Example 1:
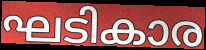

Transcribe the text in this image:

ഘടികാര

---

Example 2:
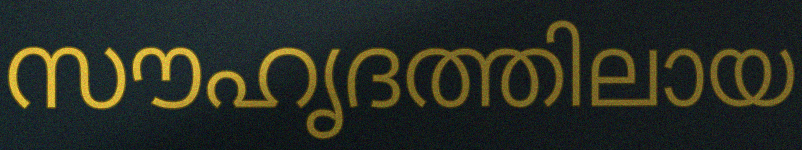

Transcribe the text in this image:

സൗഹൃദത്തിലായ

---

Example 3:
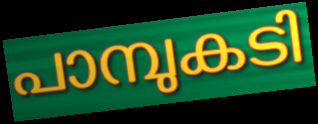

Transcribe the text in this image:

പാമ്പുകടി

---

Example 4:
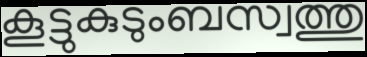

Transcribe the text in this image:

കൂട്ടുകുടുംബസ്വത്തു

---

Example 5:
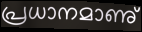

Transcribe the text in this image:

പ്രധാനമാണു്